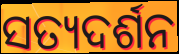
ସତ୍ୟଦର୍ଶନ